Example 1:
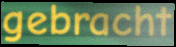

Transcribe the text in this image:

gebracht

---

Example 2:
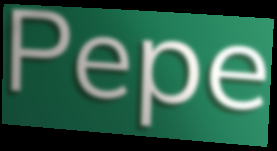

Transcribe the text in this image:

Pepe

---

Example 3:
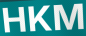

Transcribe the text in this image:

HKM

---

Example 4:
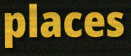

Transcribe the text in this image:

places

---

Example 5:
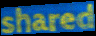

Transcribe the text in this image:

shared